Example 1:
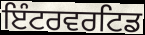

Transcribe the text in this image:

ਇੰਟਰਵਰਟਿਡ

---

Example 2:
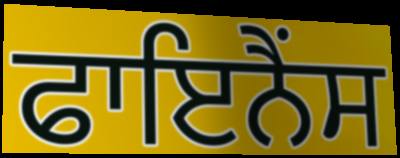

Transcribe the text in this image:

ਫਾਇਨੈਂਸ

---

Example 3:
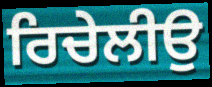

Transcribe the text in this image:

ਰਿਚੇਲੀਉ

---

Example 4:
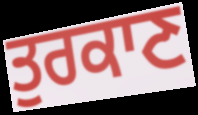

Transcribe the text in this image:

ਤੁਰਕਾਣ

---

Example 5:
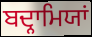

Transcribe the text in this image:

ਬਦ੍ਨਾਮਿਯਾਂ